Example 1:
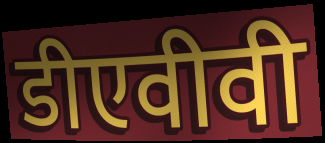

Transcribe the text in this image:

डीएवीवी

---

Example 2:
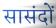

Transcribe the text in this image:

सासंदों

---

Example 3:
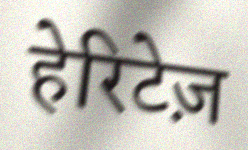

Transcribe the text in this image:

हेरिटेज़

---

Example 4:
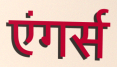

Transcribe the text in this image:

एंगर्स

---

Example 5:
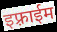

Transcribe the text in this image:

इफ़्राईम